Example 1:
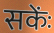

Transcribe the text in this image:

सकेंः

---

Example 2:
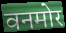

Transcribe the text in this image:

वनमोर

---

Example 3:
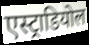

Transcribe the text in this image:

एस्ट्राडियोल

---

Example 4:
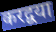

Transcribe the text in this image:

करद्वया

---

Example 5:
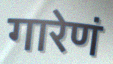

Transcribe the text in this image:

गारेणं